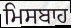
ਮਿਸਬਾਹ